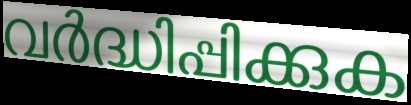
വർദ്ധിപ്പിക്കുക